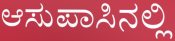
ಆಸುಪಾಸಿನಲ್ಲಿ